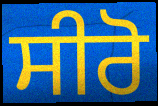
ਸੀਰੋ